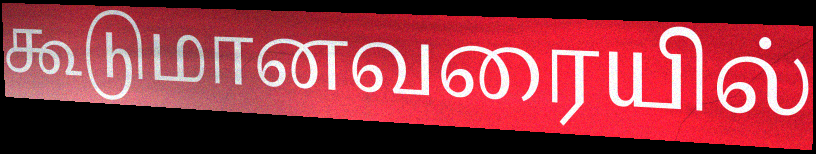
கூடுமானவரையில்